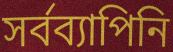
সর্বব্যাপিনি